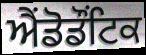
ਐਂਡੋਡੌਂਟਿਕ